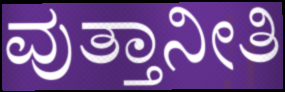
ವುತ್ತಾನೀತಿ